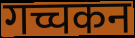
गच्चकन